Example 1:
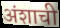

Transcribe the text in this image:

अंशाची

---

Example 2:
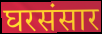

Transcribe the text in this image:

घरसंसार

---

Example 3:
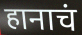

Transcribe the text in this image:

हानाचं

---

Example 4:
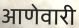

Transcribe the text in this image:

आणेवारी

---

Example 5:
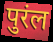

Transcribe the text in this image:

पुरंल